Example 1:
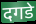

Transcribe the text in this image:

दगडे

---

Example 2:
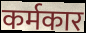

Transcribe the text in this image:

कर्मकार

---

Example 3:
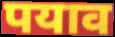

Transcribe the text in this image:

पयाव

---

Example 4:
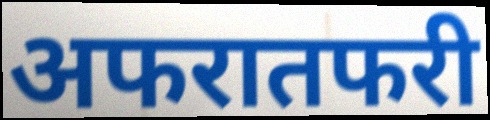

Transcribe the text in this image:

अफरातफरी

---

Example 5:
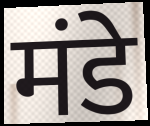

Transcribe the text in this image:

मंडे